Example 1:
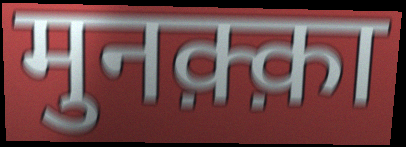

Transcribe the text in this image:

मुनक़्क़ा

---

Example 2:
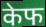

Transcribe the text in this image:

केफ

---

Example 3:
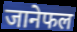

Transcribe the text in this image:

जानेफल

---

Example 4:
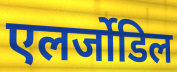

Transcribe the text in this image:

एलर्जोडिल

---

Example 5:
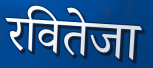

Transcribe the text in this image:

रवितेजा